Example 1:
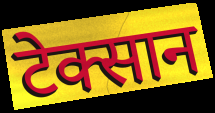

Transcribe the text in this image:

टेक्सान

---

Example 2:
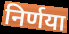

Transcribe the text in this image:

निर्णया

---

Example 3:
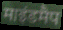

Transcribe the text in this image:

माइंडमैप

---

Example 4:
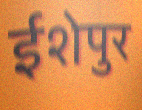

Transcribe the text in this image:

ईशेपुर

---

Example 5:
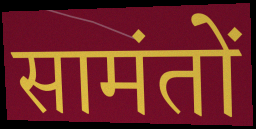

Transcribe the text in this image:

सामंतों